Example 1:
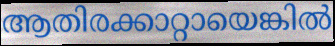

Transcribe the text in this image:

ആതിരക്കാറ്റായെങ്കിൽ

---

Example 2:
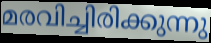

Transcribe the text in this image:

മരവിച്ചിരിക്കുന്നു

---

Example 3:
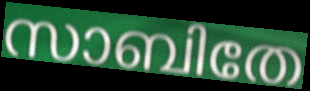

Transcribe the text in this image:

സാബിതേ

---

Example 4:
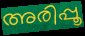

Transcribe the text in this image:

അരിപ്പൂ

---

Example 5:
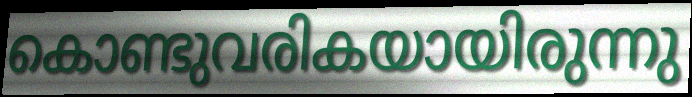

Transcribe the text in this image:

കൊണ്ടുവരികയായിരുന്നു